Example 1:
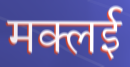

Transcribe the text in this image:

मक्लई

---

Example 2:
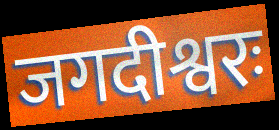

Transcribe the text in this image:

जगदीश्वरः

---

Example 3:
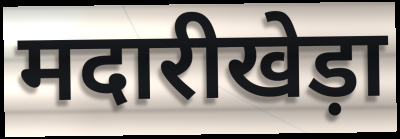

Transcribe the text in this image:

मदारीखेड़ा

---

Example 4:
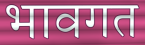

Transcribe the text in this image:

भावगत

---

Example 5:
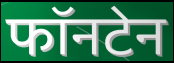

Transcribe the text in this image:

फॉनटेन